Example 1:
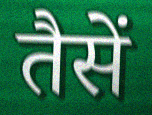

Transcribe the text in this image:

तैसें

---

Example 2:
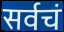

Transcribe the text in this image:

सर्वचं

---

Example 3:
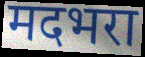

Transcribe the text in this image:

मदभरा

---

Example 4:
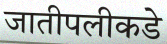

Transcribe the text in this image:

जातीपलीकडे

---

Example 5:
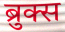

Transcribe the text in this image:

ब्रुक्‍स